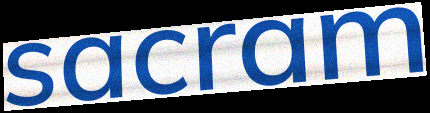
sacram